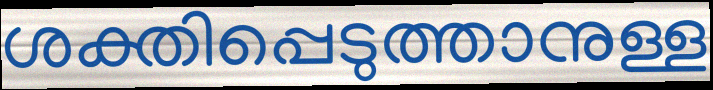
ശക്തിപ്പെടുത്താനുള്ള